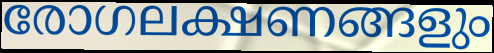
രോഗലക്ഷണങ്ങളും